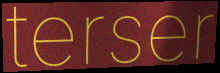
terser